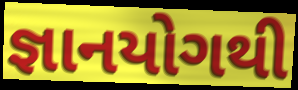
જ્ઞાનયોગથી